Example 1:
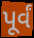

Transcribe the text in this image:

પૂર્વં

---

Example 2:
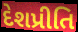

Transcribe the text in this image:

દેશપ્રીતિ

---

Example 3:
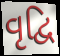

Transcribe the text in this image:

વૃદ્વિ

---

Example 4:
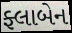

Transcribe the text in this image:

ફ્લાબેન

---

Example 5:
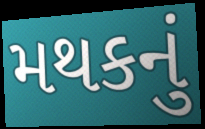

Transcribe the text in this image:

મથકનું